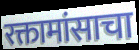
रक्तामांसाचा